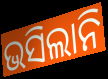
ଭସିଲାନି